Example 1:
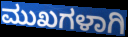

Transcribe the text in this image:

ಮುಖಗಳಾಗಿ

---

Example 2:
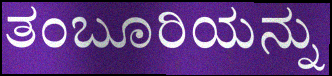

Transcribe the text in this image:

ತಂಬೂರಿಯನ್ನು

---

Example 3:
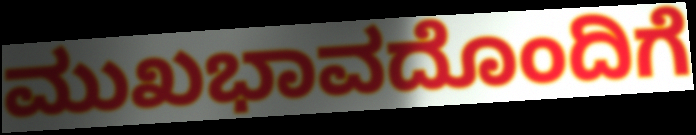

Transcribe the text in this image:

ಮುಖಭಾವದೊಂದಿಗೆ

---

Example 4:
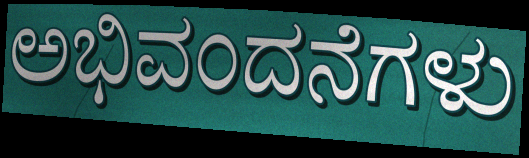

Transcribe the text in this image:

ಅಭಿವಂದನೆಗಳು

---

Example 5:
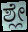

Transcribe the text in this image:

ಶ್ಲೇ